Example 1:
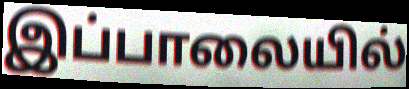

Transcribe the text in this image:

இப்பாலையில்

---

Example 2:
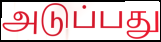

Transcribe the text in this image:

அடுப்பது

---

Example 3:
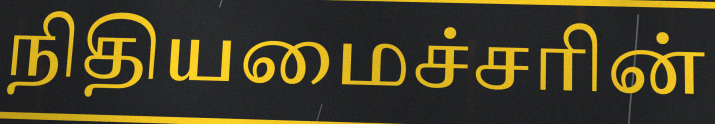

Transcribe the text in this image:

நிதியமைச்சரின்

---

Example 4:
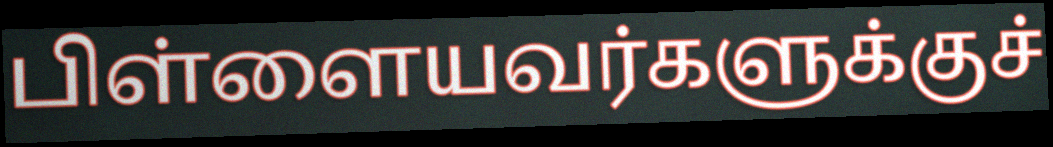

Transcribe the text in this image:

பிள்ளையவர்களுக்குச்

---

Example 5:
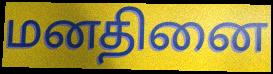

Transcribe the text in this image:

மனதினை